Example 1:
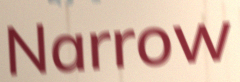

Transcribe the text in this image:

Narrow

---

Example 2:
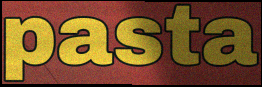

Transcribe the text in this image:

pasta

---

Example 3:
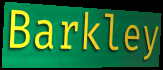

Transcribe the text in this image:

Barkley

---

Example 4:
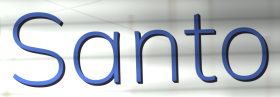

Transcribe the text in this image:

Santo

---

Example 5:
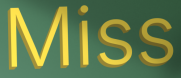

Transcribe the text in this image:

Miss